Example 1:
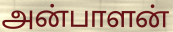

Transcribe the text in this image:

அன்பாளன்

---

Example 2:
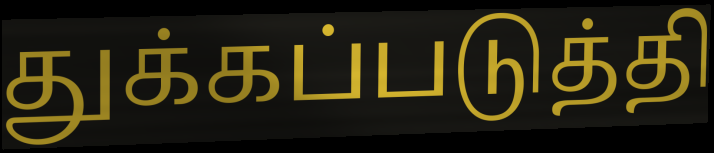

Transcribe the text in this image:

துக்கப்படுத்தி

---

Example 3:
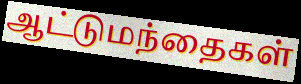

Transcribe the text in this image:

ஆட்டுமந்தைகள்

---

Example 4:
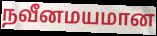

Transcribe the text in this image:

நவீனமயமான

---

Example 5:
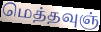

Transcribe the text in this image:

மெத்தவுஞ்